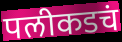
पलीकडचं